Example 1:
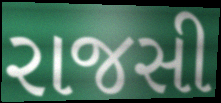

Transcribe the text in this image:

રાજસી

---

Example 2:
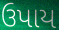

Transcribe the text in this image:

ઉપાય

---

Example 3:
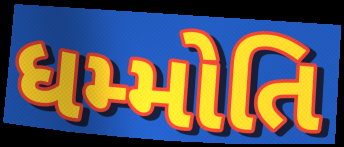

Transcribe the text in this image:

ધમ્મોતિ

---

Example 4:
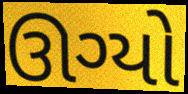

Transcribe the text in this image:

ઊગ્યો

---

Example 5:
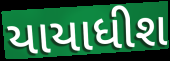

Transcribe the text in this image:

યાયાધીશ